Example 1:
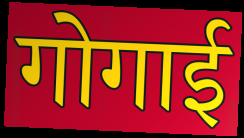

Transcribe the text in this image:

गोगाई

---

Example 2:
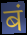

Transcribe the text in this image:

बं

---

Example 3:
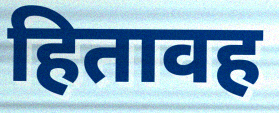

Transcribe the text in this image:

हितावह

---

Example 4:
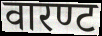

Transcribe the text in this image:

वारण्ट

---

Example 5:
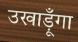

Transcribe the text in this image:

उखाड़ूँगा